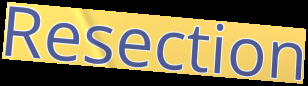
Resection